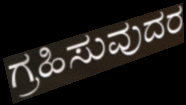
ಗ್ರಹಿಸುವುದರ